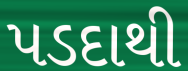
પડદાથી